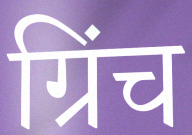
ग्रिंच